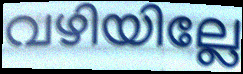
വഴിയില്ലേ